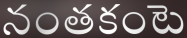
నంతకంటె